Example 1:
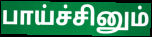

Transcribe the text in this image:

பாய்ச்சினும்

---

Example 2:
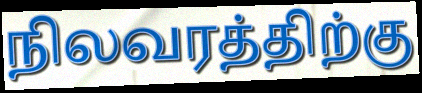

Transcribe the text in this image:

நிலவரத்திற்கு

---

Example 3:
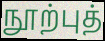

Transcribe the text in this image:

நூற்புத்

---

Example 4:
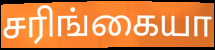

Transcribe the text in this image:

சரிங்கையா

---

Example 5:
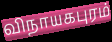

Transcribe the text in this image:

விநாயகபுரம்